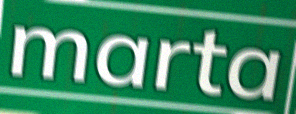
marta